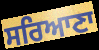
ਸਰਿਆਣਾ